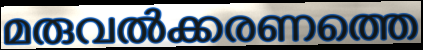
മരുവൽക്കരണത്തെ